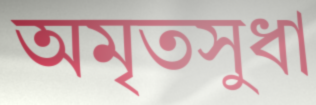
অমৃতসুধা